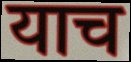
याच